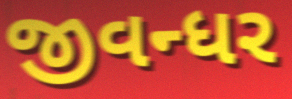
જીવન્ધર